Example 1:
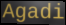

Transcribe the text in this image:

Agadi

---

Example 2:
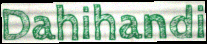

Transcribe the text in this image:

Dahihandi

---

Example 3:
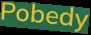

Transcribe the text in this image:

Pobedy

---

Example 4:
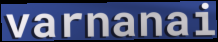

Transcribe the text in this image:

varnanai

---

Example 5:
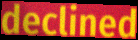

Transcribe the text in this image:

declined